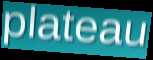
plateau